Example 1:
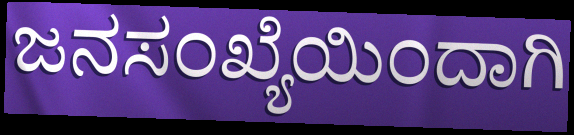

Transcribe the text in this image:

ಜನಸಂಖ್ಯೆಯಿಂದಾಗಿ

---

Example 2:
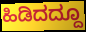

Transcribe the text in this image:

ಹಿಡಿದದ್ದೂ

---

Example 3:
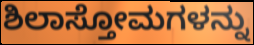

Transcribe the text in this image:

ಶಿಲಾಸ್ತೋಮಗಳನ್ನು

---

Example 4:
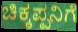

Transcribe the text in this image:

ಚಿಕ್ಕಪ್ಪನಿಗೆ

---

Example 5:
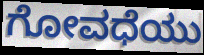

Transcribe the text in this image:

ಗೋವಧೆಯು